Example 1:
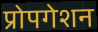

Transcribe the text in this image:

प्रोपगेशन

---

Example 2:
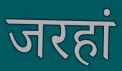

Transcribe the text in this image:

जरहां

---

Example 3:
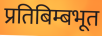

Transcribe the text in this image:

प्रतिबिम्बभूत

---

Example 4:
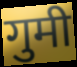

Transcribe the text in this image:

गुमी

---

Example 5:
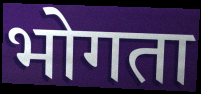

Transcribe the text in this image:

भोगता